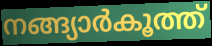
നങ്ങ്യാർകൂത്ത്